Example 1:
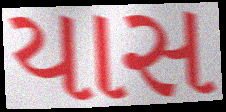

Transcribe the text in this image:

યાસ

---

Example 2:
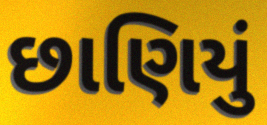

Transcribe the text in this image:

છાણિયું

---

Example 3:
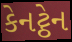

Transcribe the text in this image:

કેનટ્ઠેન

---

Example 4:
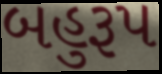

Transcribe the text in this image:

બહુરૂપ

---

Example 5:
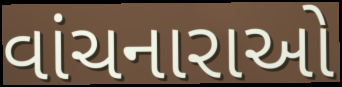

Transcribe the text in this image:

વાંચનારાઓ